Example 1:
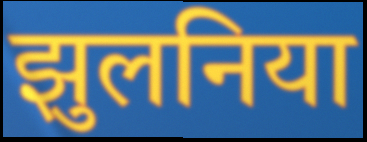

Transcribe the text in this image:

झुलनिया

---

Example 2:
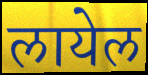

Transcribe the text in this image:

लायेल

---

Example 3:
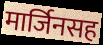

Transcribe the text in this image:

मार्जिनसह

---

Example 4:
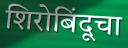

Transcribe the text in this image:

शिरोबिंदूचा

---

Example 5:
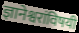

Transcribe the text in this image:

ज्ञानेश्वरांविषयी